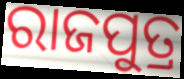
ରାଜପୁତ୍ର